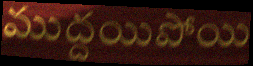
ముద్దయిపోయి